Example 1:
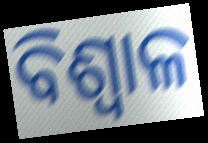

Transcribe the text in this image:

ବିଶ୍ୱାଳ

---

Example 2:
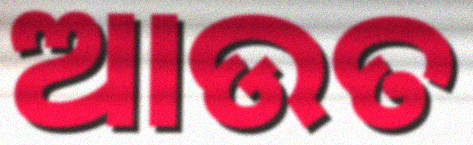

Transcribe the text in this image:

ଆଉତ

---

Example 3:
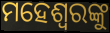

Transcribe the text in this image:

ମହେଶ୍ଵରଙ୍କୁ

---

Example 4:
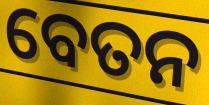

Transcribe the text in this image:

ବେତନ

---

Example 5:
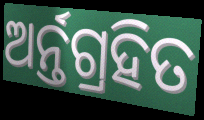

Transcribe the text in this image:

ଅର୍ନ୍ତଗ୍ରହିତ